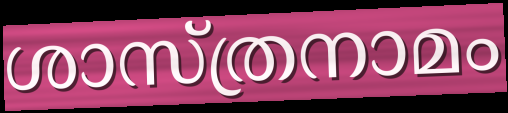
ശാസ്ത്രനാമം